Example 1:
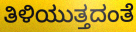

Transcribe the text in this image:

ತಿಳಿಯುತ್ತದಂತೆ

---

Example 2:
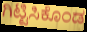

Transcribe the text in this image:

ಗಿಟ್ಟಿಸಿಕೊಂಡ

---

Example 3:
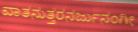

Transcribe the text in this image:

ವಾತನುತ್ತರನರ್ಜುನಂಗೀ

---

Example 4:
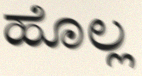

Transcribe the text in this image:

ಹೊಲ್ಲ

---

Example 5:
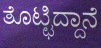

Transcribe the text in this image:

ತೊಟ್ಟಿದ್ದಾನೆ